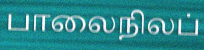
பாலைநிலப்